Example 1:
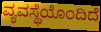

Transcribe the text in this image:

ವ್ಯವಸ್ಥೆಯೊಂದಿದೆ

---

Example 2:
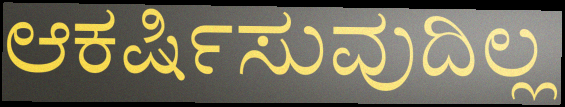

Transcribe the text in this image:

ಆಕರ್ಷಿಸುವುದಿಲ್ಲ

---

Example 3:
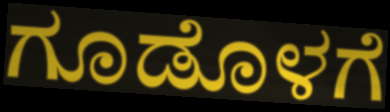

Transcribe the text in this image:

ಗೂಡೊಳಗೆ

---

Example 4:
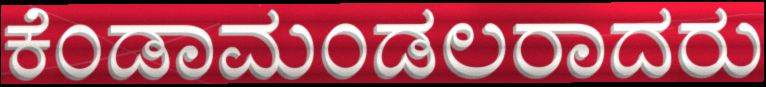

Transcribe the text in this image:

ಕೆಂಡಾಮಂಡಲರಾದರು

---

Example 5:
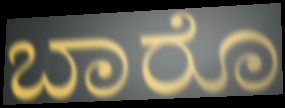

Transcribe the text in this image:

ಬಾರೊ